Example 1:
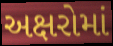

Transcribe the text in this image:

અક્ષરોમાં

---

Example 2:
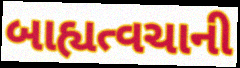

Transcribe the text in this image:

બાહ્યત્વચાની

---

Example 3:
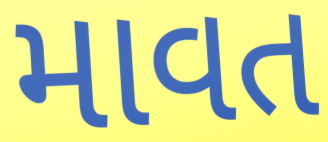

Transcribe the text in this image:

માવત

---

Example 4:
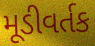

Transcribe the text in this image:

મૂડીવર્તક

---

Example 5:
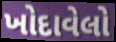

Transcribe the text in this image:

ખોદાવેલો